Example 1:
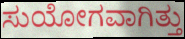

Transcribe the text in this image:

ಸುಯೋಗವಾಗಿತ್ತು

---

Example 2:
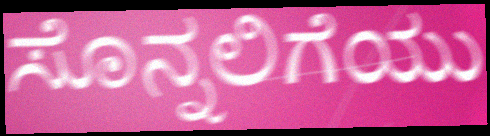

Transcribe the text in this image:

ಸೊನ್ನಲಿಗೆಯು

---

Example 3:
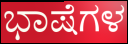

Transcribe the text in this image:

ಭಾಷೆಗಳ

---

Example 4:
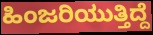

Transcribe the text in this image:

ಹಿಂಜರಿಯುತ್ತಿದ್ದೆ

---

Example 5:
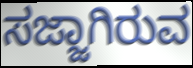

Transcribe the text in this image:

ಸಜ್ಜಾಗಿರುವ